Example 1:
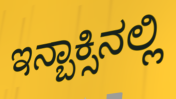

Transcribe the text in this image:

ಇನ್ಬಾಕ್ಸಿನಲ್ಲಿ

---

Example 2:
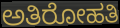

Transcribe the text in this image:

ಅತಿರೋಹತಿ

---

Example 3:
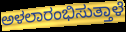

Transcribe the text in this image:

ಅಳಲಾರಂಭಿಸುತ್ತಾಳೆ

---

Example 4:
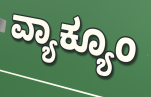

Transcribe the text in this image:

ವ್ಯಾಕ್ಯೂಂ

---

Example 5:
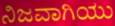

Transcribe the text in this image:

ನಿಜವಾಗಿಯು